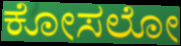
ಕೋಸಲೋ